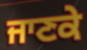
ਜਾਣਕੇ